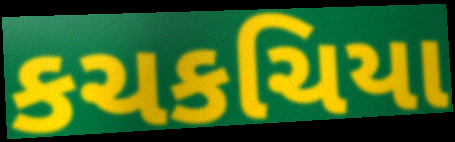
કચકચિયા